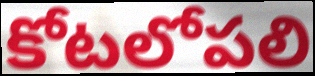
కోటలోపలి